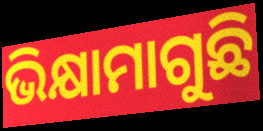
ଭିକ୍ଷାମାଗୁଛି